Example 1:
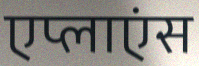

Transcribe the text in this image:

एप्लाएंस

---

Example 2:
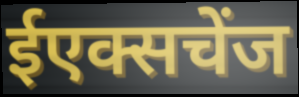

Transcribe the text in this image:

ईएक्सचेंज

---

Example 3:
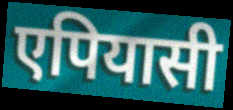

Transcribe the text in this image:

एपियासी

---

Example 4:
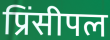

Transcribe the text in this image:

प्रिंसीपल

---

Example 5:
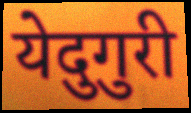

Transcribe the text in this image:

येदुगुरी